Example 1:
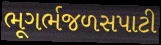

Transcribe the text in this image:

ભૂગર્ભજળસપાટી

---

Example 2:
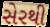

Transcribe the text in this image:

સેરથી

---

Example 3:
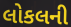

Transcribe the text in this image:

લોકલની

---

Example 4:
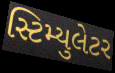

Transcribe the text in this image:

સ્ટિમ્યુલેટર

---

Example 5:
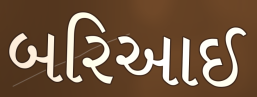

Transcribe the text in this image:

બરિઆઈ